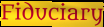
Fiduciary